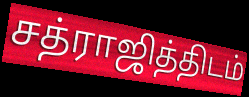
சத்ராஜித்திடம்